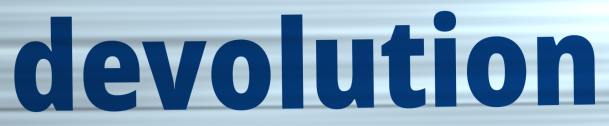
devolution